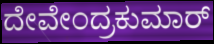
ದೇವೇಂದ್ರಕುಮಾರ್